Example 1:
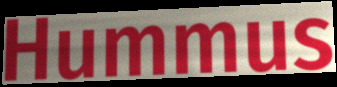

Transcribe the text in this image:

Hummus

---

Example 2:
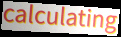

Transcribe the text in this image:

calculating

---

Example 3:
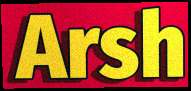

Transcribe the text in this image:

Arsh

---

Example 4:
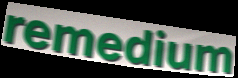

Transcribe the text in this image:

remedium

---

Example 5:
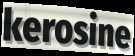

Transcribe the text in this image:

kerosine